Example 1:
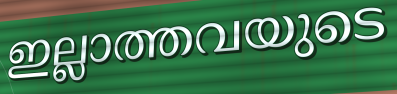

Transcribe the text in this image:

ഇല്ലാത്തവയുടെ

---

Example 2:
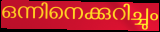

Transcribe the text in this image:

ഒന്നിനെക്കുറിച്ചും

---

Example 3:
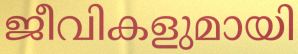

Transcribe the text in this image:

ജീവികളുമായി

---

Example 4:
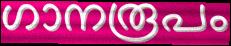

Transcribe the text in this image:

ഗാനരൂപം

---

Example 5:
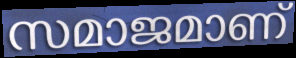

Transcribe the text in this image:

സമാജമാണ്